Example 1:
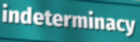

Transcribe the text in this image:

indeterminacy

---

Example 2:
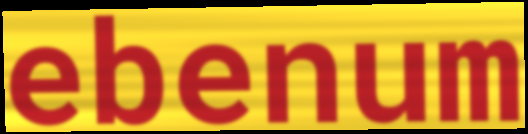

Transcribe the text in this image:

ebenum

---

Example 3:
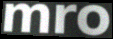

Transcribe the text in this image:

mro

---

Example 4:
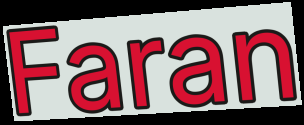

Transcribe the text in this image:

Faran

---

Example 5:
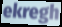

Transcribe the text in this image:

ekregh